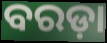
ବରଡ଼ା